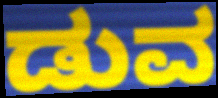
ಡುವ